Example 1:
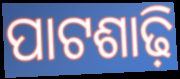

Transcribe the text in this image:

ପାଟଶାଢ଼ି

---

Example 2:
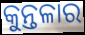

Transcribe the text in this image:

କୁନ୍ତଳାର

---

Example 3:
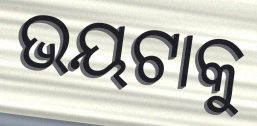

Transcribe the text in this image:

ଭୟଟାକୁ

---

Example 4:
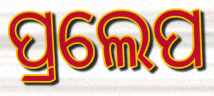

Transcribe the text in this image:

ପ୍ରଲେପ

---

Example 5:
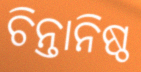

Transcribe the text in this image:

ଚିନ୍ତାନିଷ୍ଠ